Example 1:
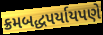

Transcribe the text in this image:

ક્રમબદ્ધપર્યાયપણે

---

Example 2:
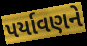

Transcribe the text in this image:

પર્યાવણને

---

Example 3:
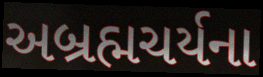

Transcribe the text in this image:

અબ્રહ્મચર્યના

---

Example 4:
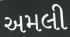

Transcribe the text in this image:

અમલી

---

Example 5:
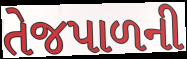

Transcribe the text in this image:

તેજપાળની